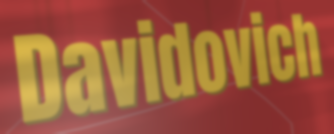
Davidovich